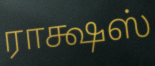
ராக்ஷஸ்